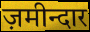
ज़मीन्दार